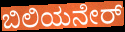
ಬಿಲಿಯನೇರ್